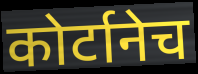
कोर्टानेच